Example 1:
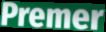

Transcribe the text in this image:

Premer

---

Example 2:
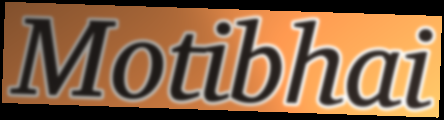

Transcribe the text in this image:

Motibhai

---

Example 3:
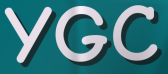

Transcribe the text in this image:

YGC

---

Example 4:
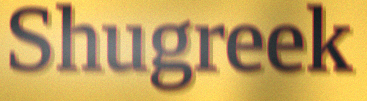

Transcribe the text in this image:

Shugreek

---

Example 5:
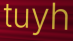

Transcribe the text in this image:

tuyh